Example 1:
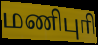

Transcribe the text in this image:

மணிபுரி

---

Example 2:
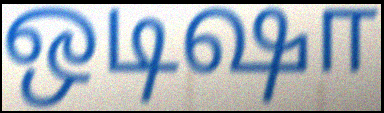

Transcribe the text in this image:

ஒடிஷா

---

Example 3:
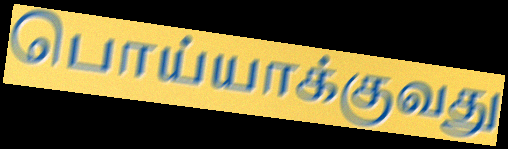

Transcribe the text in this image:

பொய்யாக்குவது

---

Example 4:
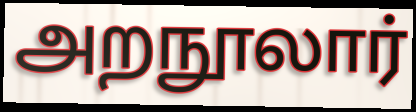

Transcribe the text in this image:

அறநூலார்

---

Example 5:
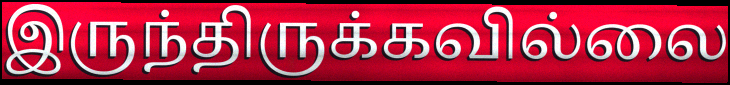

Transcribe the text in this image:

இருந்திருக்கவில்லை